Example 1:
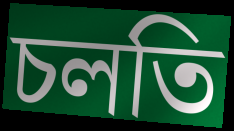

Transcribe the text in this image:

চলতি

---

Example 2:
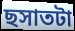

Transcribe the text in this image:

ছসাতটা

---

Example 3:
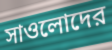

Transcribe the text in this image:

সাওলোদের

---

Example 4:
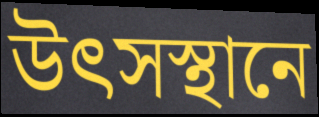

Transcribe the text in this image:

উৎসস্থানে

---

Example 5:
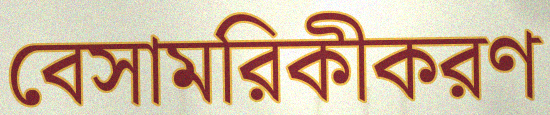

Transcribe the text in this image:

বেসামরিকীকরণ